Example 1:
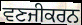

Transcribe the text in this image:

ਵਣਜੀਕਰਨ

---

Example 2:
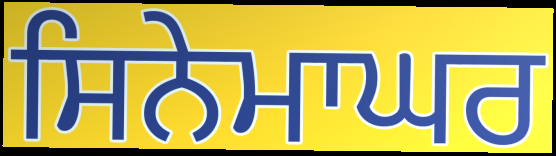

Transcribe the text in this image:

ਸਿਨੇਮਾਘਰ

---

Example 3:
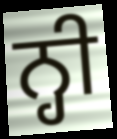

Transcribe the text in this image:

ਨ੍ਹੀ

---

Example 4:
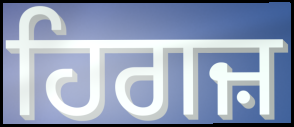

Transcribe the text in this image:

ਹਿਗਜ਼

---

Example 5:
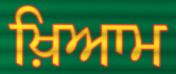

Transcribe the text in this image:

ਖ਼ਿਆਮ